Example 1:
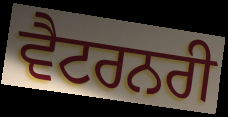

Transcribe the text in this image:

ਵੈਟਰਨਰੀ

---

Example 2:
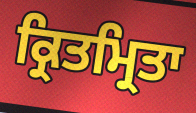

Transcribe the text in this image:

ਕ੍ਰਿਤਮ੍ਰਿਤਾ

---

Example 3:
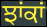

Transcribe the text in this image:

ਝਾਂਕਾਂ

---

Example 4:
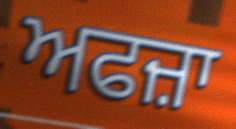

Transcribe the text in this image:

ਅਫਜ਼ਾ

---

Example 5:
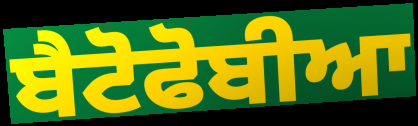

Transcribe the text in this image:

ਬੈਟੋਫੋਬੀਆ